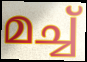
മച്ച്